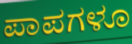
ಪಾಪಗಳೂ